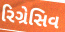
રિગ્રેસિવ